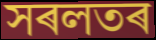
সৰলতৰ